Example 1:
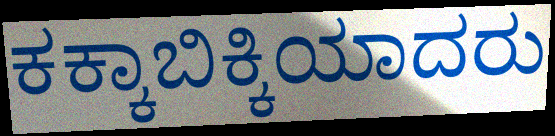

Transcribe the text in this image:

ಕಕ್ಕಾಬಿಕ್ಕಿಯಾದರು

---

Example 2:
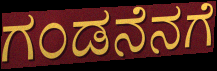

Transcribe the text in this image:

ಗಂಡನೆನಗೆ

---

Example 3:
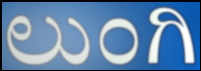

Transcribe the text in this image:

ಲುಂಗಿ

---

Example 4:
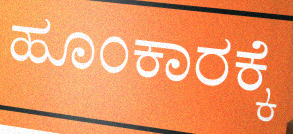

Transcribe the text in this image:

ಹೂಂಕಾರಕ್ಕೆ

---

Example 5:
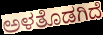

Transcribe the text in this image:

ಅಳತೊಡಗಿದೆ